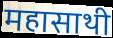
महासाथी